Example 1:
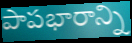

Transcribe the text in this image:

పాపభారాన్ని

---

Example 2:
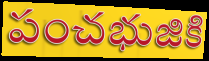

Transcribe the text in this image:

పంచభుజికి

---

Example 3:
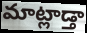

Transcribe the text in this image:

మాట్లాడ్తా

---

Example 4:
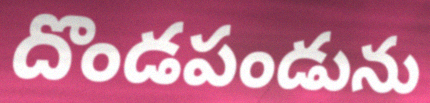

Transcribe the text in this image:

దొండపండును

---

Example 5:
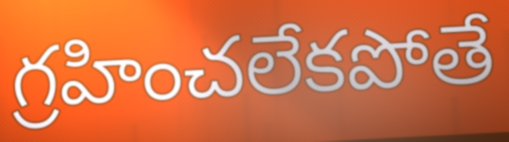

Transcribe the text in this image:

గ్రహించలేకపోతే